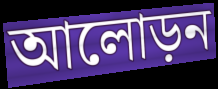
আলোড়ন